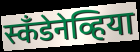
स्कॅंडेनेव्हिया